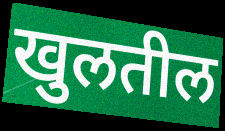
खुलतील